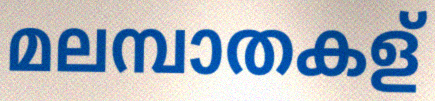
മലമ്പാതകള്